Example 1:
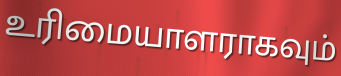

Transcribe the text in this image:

உரிமையாளராகவும்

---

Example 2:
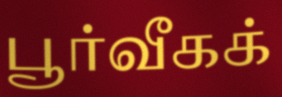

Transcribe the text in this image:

பூர்வீகக்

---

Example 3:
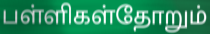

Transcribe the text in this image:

பள்ளிகள்தோறும்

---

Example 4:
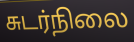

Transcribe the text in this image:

சுடர்நிலை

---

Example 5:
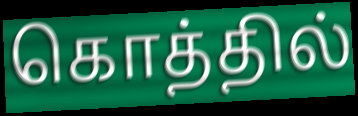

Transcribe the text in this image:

கொத்தில்